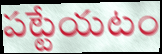
పట్టేయటం